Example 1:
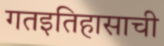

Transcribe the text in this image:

गतइतिहासाची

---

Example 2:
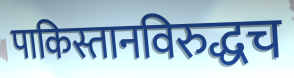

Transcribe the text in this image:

पाकिस्तानविरुद्धच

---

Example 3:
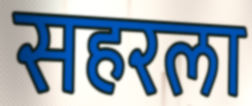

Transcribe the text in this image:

सहरला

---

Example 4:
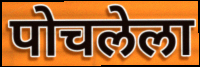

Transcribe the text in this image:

पोचलेला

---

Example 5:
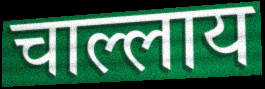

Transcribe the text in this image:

चाल्लाय